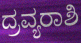
ದ್ರವ್ಯರಾಶಿ